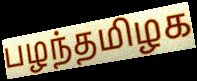
பழந்தமிழக